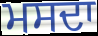
ਮਸਦਾ